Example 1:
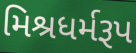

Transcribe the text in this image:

મિશ્રધર્મરૂપ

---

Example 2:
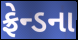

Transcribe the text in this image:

ફ્રેન્ડના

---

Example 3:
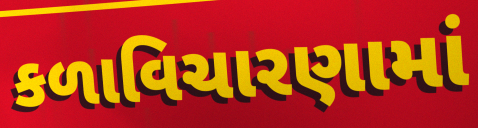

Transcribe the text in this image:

કળાવિચારણામાં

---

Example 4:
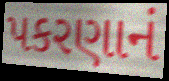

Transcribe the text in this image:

પકરણાનં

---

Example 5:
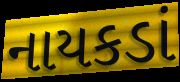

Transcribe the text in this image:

નાયકડાં